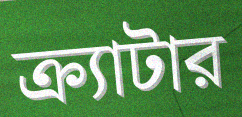
ক্র্যাটার